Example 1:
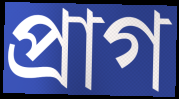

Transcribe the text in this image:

প্ৰাগ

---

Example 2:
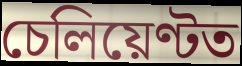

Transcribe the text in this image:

চেলিয়েণ্টত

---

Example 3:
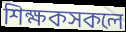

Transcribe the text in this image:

শিক্ষকসকলে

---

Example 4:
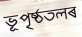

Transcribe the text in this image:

ভূপৃষ্ঠতলৰ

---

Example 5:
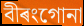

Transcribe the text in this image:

বীৰংগোনা